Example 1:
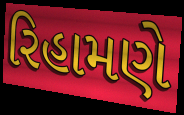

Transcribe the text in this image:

રિહામણે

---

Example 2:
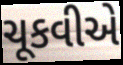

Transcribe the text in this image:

ચૂકવીએ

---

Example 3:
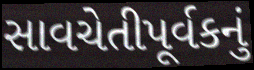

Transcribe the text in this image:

સાવચેતીપૂર્વકનું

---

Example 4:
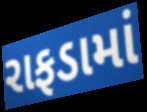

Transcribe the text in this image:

રાફડામાં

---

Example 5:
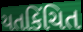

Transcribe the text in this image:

યતકિંચિત